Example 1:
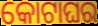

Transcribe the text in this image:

କୋଟାଘର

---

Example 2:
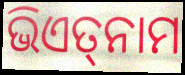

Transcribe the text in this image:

ଭିଏତ୍‌ନାମ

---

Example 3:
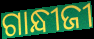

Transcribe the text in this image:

ଗାନ୍ଧୀଜୀ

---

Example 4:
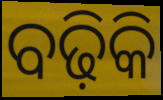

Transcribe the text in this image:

ବଢ଼ିକି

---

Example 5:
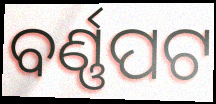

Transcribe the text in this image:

ବର୍ଣ୍ଣପଟ